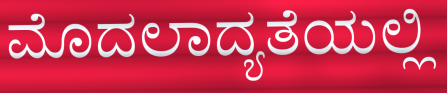
ಮೊದಲಾದ್ಯತೆಯಲ್ಲಿ